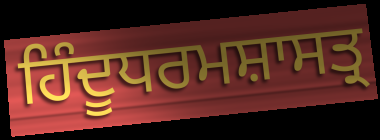
ਹਿੰਦੂਧਰਮਸ਼ਾਸਤ੍ਰ